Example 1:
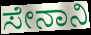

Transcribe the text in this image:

ಸೇನಾನಿ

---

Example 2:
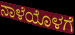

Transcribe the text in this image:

ನಾಳೆಯೊಳಗೆ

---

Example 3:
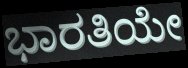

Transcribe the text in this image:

ಭಾರತಿಯೇ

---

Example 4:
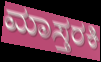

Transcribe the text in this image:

ಮಾಸ್ತರಕಿ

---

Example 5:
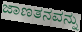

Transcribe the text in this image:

ಜಾಣತನವನ್ನು